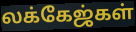
லக்கேஜ்கள்